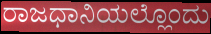
ರಾಜಧಾನಿಯಲ್ಲೊಂದು